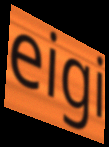
eigi